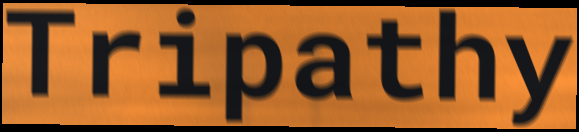
Tripathy